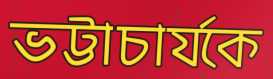
ভট্টাচার্যকে